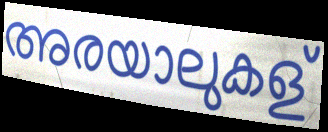
അരയാലുകള്